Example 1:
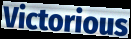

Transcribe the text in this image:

Victorious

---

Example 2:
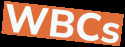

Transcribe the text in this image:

WBCs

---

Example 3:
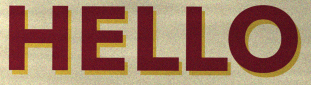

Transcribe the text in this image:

HELLO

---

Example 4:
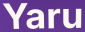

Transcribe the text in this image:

Yaru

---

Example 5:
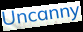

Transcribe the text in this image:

Uncanny